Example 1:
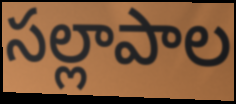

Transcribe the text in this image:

సల్లాపాల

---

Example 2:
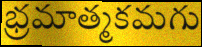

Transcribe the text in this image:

భ్రమాత్మకమగు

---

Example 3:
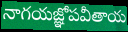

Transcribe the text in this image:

నాగయజ్ఞోపవీతాయ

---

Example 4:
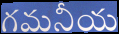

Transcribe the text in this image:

గమనీయ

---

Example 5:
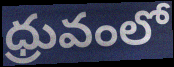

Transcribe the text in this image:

ధ్రువంలో